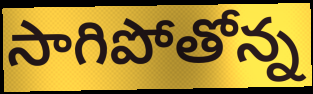
సాగిపోతోన్న